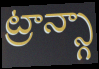
ట్రాన్స్గా